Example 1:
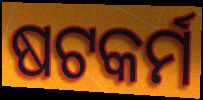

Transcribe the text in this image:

ଷଟକର୍ମ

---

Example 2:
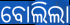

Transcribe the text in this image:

ବୋଲିଲା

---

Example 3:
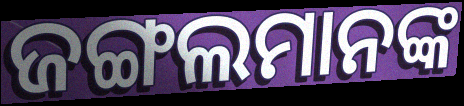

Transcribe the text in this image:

ଜଙ୍ଗଲମାନଙ୍କ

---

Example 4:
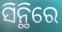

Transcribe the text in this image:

ସିନ୍ଥିରେ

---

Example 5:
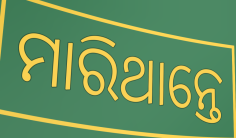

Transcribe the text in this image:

ମାରିଥାନ୍ତେ